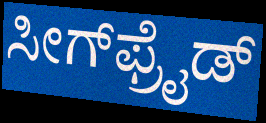
ಸೀಗ್‌ಫ್ರೈಡ್